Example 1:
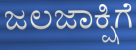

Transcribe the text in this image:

ಜಲಜಾಕ್ಷಿಗೆ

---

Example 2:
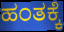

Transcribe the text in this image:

ಹಂತಕ್ಕೆ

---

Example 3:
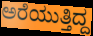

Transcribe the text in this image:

ಅರೆಯುತ್ತಿದ್ದ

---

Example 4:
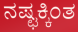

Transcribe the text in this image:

ನಷ್ಟಕ್ಕಿಂತ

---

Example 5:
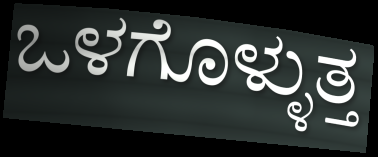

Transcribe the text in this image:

ಒಳಗೊಳ್ಳುತ್ತ